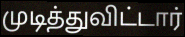
முடித்துவிட்டார்